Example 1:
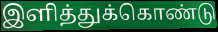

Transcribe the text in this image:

இளித்துக்கொண்டு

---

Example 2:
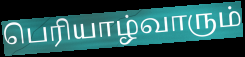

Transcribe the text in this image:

பெரியாழ்வாரும்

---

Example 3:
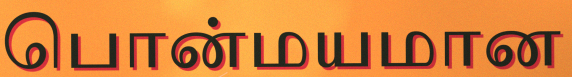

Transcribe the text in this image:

பொன்மயமான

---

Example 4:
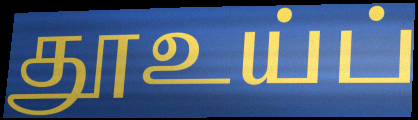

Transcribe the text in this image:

தூஉய்ப்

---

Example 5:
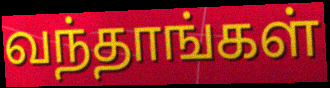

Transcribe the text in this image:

வந்தாங்கள்